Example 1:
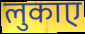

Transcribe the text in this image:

लुकाए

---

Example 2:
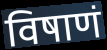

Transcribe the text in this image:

विषाणं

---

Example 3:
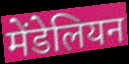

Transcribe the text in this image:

मेंडेलियन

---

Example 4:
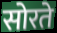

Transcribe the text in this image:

सोरते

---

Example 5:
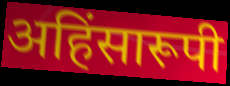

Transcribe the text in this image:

अहिंसारूपी